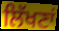
ਲਿੱਖਣਾਂ